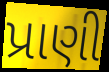
પ્રાણી